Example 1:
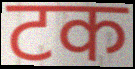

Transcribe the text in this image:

टक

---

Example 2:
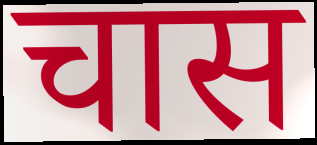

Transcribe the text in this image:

चास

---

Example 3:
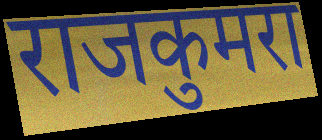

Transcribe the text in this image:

राजकुमरा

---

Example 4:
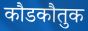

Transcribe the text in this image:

कौडकौतुक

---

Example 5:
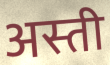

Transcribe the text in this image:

अस्ती